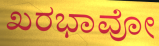
ಖರಭಾವೋ